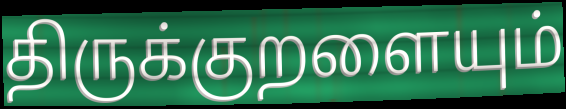
திருக்குறளையும்